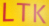
LTK